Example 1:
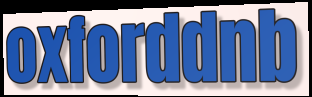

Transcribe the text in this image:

oxforddnb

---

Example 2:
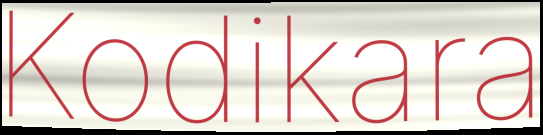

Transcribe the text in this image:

Kodikara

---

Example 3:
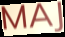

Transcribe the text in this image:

MAJ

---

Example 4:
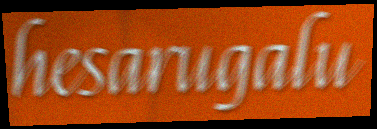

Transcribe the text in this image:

hesarugalu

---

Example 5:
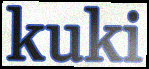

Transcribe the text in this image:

kuki